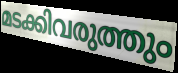
മടക്കിവരുത്തും